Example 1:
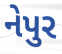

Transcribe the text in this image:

નેપુર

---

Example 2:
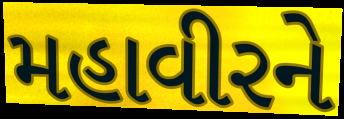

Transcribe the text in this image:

મહાવીરને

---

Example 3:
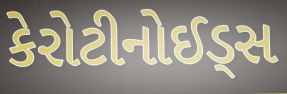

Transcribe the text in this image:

કેરોટીનોઈડ્સ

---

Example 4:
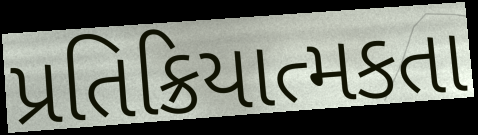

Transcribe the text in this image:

પ્રતિક્રિયાત્મકતા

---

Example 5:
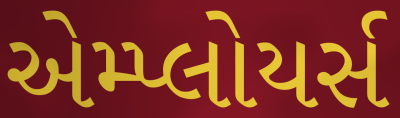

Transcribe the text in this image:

એમ્પ્લોયર્સ